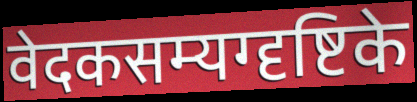
वेदकसम्यग्दृष्टिके